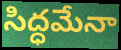
సిద్ధమేనా